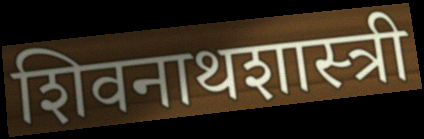
शिवनाथशास्त्री